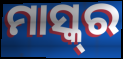
ମାସ୍କ୍‌ର